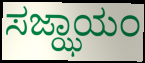
ಸಜ್ಝಾಯಂ